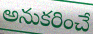
అనుకరించే